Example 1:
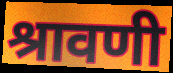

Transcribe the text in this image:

श्रावणी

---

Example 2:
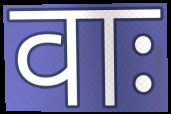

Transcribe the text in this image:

वाः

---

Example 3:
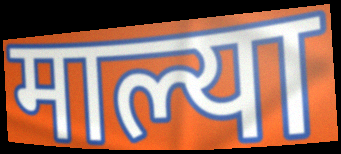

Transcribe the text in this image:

माल्या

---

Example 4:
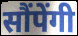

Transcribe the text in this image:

सौंपेंगी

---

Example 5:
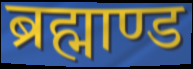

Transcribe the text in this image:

ब्रह्माण्ड